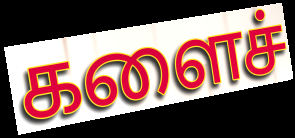
களைச்